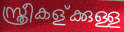
സ്ത്രീകള്ക്കുള്ള